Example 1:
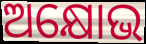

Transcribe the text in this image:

ଅକ୍ଷୋଭ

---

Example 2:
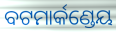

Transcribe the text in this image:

ବଟମାର୍କଣ୍ଡେୟ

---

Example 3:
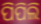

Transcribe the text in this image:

ପିପିଲି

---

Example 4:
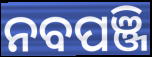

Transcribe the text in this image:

ନବପଞ୍ଜି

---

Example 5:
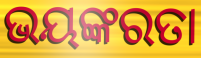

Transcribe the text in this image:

ଭୟଙ୍କରତା